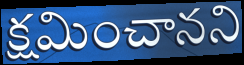
క్షమించానని